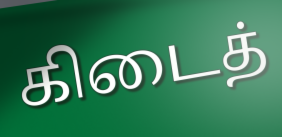
கிடைத்